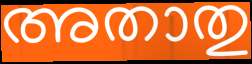
അതാതു